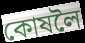
কোষলৈ